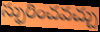
స్ఫురించవచ్చు